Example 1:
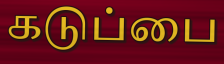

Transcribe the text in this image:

கடுப்பை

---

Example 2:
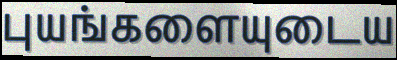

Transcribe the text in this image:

புயங்களையுடைய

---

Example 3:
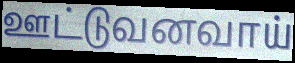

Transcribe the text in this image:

ஊட்டுவனவாய்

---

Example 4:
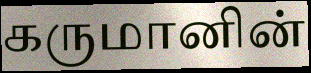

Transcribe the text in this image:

கருமானின்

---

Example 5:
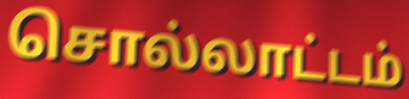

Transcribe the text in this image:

சொல்லாட்டம்